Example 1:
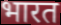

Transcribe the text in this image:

भारत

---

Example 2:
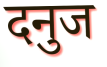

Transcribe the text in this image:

दनुज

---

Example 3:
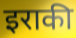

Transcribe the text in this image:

इराकी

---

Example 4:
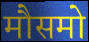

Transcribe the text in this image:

मौसमो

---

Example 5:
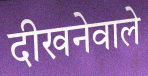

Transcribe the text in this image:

दीखनेवाले